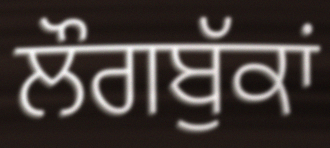
ਲੌਗਬੁੱਕਾਂ